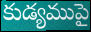
కుడ్యముపై